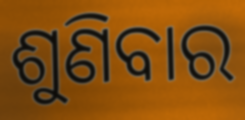
ଶୁଣିବାର